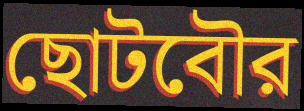
ছোটবৌর